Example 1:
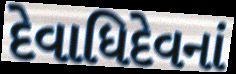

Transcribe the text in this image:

દેવાધિદેવનાં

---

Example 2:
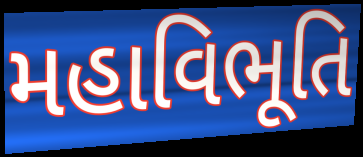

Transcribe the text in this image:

મહાવિભૂતિ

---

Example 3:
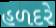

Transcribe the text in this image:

હળદરે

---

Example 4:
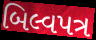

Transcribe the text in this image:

બિલ્વપત્ર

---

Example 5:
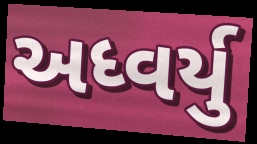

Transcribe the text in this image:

અધ્વર્યુ